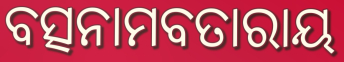
ବତ୍ସନାମବତାରାୟ